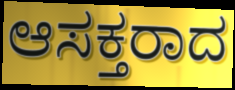
ಆಸಕ್ತರಾದ